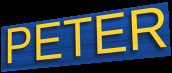
PETER